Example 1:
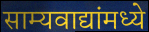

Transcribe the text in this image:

साम्यवाद्यांमध्ये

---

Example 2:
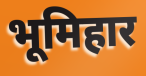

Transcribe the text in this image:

भूमिहार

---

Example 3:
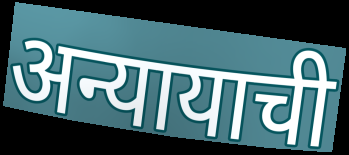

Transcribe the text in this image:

अन्यायाची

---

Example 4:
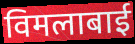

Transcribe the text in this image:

विमलाबाई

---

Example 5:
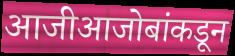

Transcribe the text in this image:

आजीआजोबांकडून